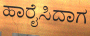
ಹಾರೈಸಿದಾಗ